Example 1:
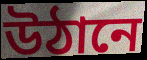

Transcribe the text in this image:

উঠানে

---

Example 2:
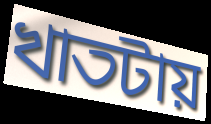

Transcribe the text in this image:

খাতটায়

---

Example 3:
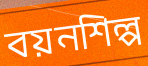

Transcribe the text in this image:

বয়নশিল্প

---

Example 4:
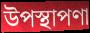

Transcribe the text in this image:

উপস্থাপণা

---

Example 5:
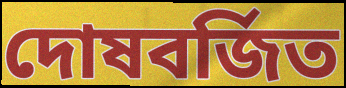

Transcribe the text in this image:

দোষবর্জিত